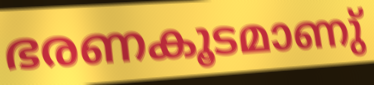
ഭരണകൂടമാണു്